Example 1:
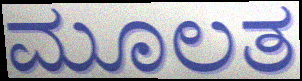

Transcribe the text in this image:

ಮೂಲತ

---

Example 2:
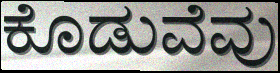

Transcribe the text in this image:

ಕೊಡುವೆವು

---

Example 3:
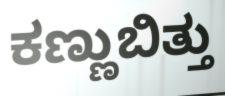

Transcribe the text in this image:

ಕಣ್ಣುಬಿತ್ತು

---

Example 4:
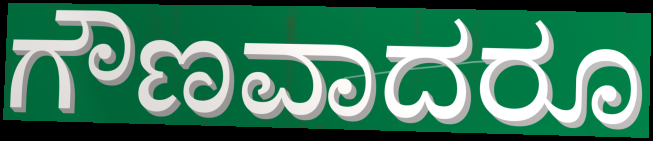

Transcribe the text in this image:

ಗೌಣವಾದರೂ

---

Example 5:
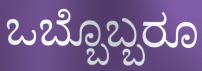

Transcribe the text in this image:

ಒಬ್ಬೊಬ್ಬರೂ